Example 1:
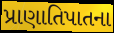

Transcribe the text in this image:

પ્રાણાતિપાતના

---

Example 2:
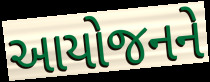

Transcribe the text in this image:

આયોજનને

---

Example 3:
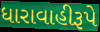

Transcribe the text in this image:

ધારાવાહીરૂપે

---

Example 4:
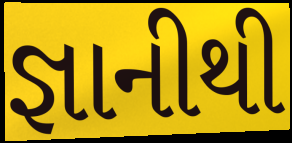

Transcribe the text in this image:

જ્ઞાનીથી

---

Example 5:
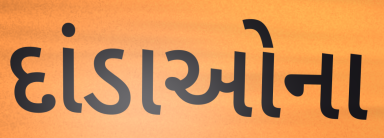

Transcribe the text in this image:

દાંડાઓના